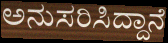
ಅನುಸರಿಸಿದ್ದಾನೆ